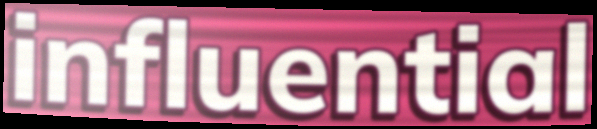
influential